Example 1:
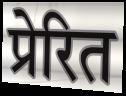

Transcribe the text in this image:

प्रेरित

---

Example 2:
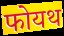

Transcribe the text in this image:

फोयथ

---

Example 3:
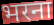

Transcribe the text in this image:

भरना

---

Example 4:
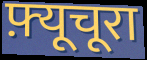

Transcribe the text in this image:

फ़्यूचूरा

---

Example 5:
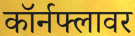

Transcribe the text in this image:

कॉर्नफ्लावर